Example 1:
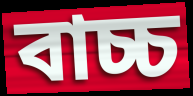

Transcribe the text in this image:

বাচ্চ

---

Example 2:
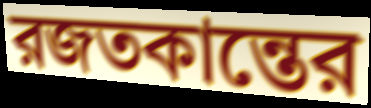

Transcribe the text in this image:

রজতকান্তের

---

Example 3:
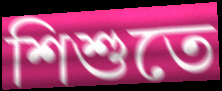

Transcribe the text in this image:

শিশুতে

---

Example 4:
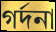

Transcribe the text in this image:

গর্দনা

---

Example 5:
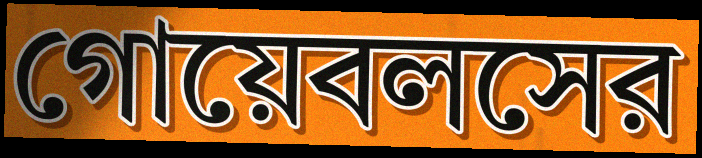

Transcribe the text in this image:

গোয়েবলসের